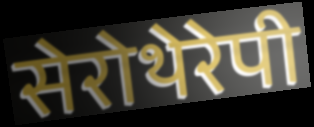
सेरोथेरेपी